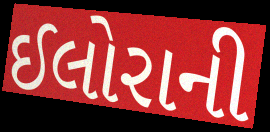
ઈલોરાની